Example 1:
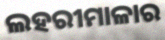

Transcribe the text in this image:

ଲହରୀମାଳାର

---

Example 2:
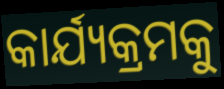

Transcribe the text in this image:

କାର୍ଯ୍ୟକ୍ରମକୁ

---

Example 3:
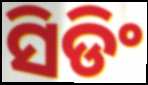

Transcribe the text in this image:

ସିଡିଂ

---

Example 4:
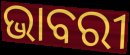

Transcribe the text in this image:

ଭାବରୀ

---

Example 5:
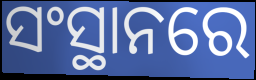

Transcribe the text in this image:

ସଂସ୍ଥାନରେ